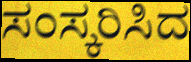
ಸಂಸ್ಕರಿಸಿದ